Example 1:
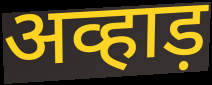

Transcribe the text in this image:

अव्हाड़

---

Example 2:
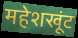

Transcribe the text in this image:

महेशखूंट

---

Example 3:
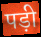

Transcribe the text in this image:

पड़ी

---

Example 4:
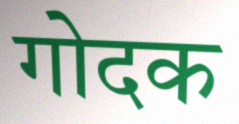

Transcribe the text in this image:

गोदक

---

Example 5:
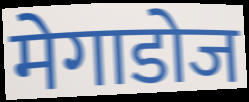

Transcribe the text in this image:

मेगाडोज